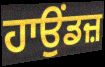
ਹਾਉਂਡਜ਼